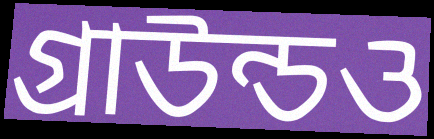
গ্রাউন্ডও